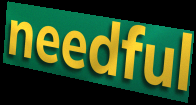
needful